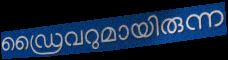
ഡ്രൈവറുമായിരുന്ന